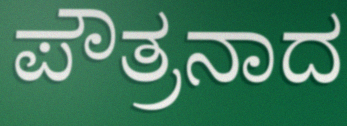
ಪೌತ್ರನಾದ